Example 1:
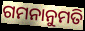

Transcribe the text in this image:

ଗମନାନୁମତି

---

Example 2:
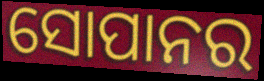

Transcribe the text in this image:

ସୋପାନର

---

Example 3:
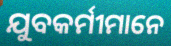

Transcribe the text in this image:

ଯୁବକର୍ମୀମାନେ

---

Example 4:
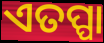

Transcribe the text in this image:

ଏତପ୍ପା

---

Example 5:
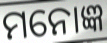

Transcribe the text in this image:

ମନୋଜ୍ଞ